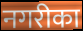
नगरीका